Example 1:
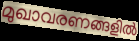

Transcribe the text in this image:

മുഖാവരണങ്ങളിൽ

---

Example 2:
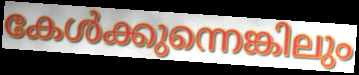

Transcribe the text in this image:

കേൾക്കുന്നെങ്കിലും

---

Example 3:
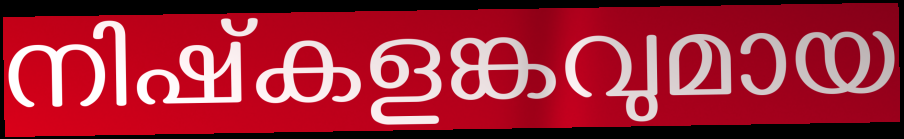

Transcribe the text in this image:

നിഷ്‌കളങ്കവുമായ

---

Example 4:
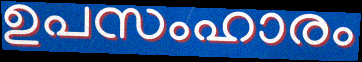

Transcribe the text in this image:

ഉപസംഹാരം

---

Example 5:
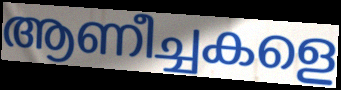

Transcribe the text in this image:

ആണീച്ചകളെ